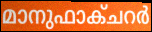
മാനുഫാക്ചറർ